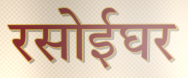
रसोईघर